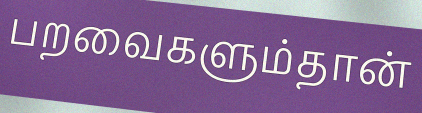
பறவைகளும்தான்